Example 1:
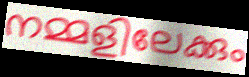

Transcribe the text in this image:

നമ്മളിലേക്കും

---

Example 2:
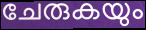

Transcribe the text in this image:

ചേരുകയും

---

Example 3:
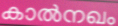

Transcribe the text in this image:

കാൽനഖം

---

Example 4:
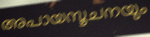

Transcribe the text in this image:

അപായസൂചനയും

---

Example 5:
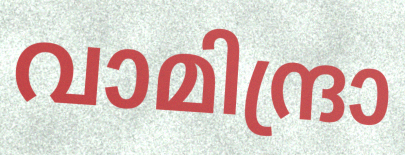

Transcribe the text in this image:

വാമിന്ദ്രാ